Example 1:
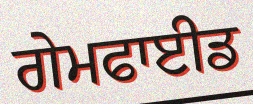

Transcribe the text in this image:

ਗੇਮਫਾਈਡ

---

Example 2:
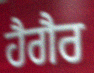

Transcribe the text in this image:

ਹੈਗੈਰ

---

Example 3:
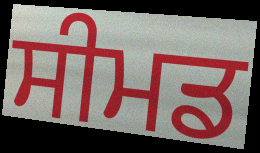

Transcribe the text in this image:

ਸੀਮਡ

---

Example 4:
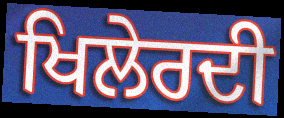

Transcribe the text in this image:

ਖਿਲੇਰਦੀ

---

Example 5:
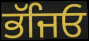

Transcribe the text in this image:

ਭੱਜਿਓ